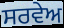
ਸਰਵੇਅ